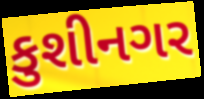
કુશીનગર